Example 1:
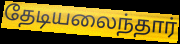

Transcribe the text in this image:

தேடியலைந்தார்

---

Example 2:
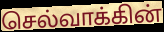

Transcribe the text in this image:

செல்வாக்கின்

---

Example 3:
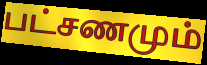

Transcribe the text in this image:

பட்சணமும்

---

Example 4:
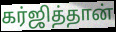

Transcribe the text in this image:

கர்ஜித்தான்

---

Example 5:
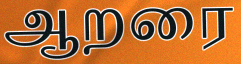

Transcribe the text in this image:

ஆறரை